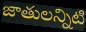
జాతులన్నిటి